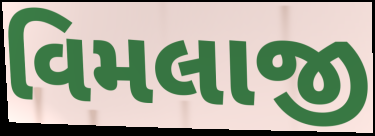
વિમલાજી